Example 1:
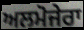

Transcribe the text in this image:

ਅਲਮੋਜੇਰਾ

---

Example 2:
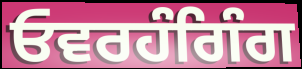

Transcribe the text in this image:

ਓਵਰਹੰਗਿੰਗ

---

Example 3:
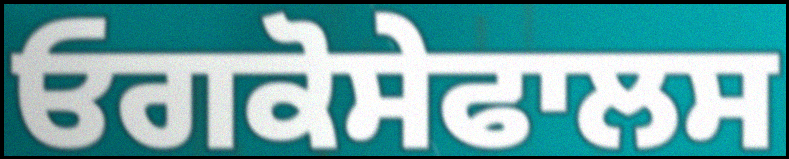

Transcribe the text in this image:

ਓਗਕੋਸੇਫਾਲਸ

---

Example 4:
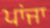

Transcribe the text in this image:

ਪਾਂਜਾ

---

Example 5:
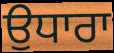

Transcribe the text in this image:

ਉਧਾਰਾ